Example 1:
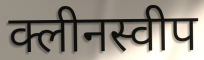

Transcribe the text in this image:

क्लीनस्वीप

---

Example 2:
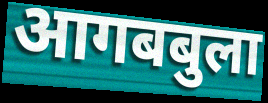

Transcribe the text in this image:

आगबबुला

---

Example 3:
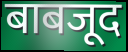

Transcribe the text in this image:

बाबजूद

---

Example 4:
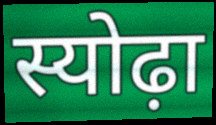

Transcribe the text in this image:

स्योढ़ा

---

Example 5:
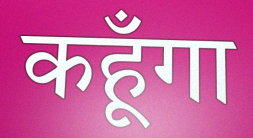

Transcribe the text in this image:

कहूँगा